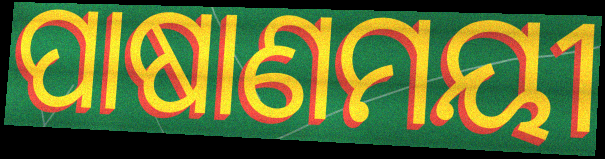
ପାଷାଣମୟୀ